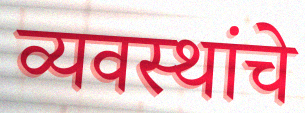
व्यवस्थांचे